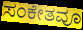
ಸಂಕೇತವೂ